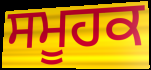
ਸਮੂਹਕ